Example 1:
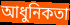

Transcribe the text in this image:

আধুনিকতা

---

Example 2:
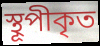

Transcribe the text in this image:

স্থূপীকৃত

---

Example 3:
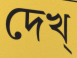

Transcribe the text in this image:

দেখ্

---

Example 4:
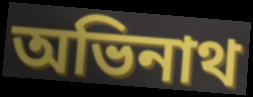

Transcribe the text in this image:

অভিনাথ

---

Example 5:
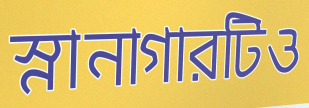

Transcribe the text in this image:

স্নানাগারটিও